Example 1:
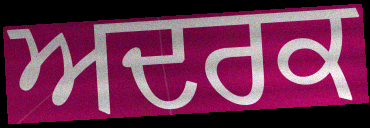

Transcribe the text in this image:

ਅਦਰਕ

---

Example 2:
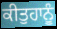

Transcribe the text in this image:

ਕੀਤੁਹਾਨੂੰ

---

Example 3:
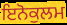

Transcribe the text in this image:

ਇਨੋਕੁਲਮ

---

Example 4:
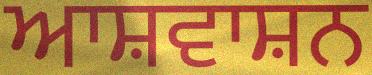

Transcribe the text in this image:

ਆਸ਼ਵਾਸ਼ਨ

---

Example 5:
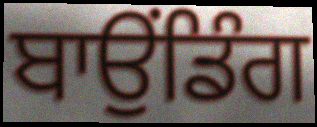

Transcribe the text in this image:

ਬਾਉਂਡਿੰਗ